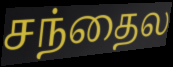
சந்தைல